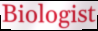
Biologist